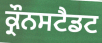
ਕ੍ਰੌਨਸਟੈਡਟ